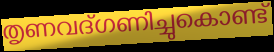
തൃണവദ്ഗണിച്ചുകൊണ്ട്